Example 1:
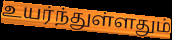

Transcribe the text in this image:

உயர்ந்துள்ளதும்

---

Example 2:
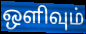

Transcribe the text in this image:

ஒளிவும்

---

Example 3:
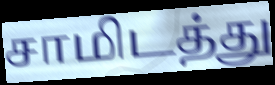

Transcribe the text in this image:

சாமிடத்து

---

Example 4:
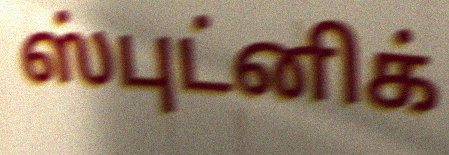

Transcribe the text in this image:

ஸ்புட்னிக்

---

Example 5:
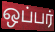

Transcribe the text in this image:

ஒப்பர்